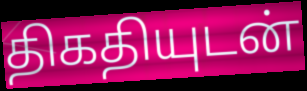
திகதியுடன்